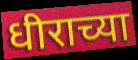
धीराच्या